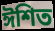
ঈশিত